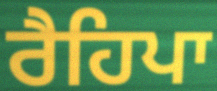
ਰੈਹਿਪਾ